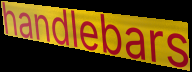
handlebars